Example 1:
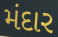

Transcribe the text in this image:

મંદાર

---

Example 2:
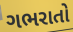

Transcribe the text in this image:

ગભરાતો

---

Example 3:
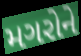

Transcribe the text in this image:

મગરોને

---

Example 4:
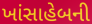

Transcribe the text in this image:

ખાંસાહેબની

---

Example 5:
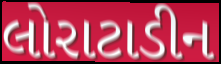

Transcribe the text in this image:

લોરાટાડીન